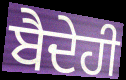
ਬੈਦੇਹੀ